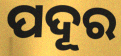
ପଦୂର